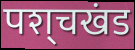
पश्चखंड